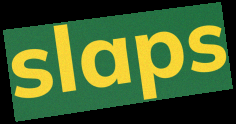
slaps